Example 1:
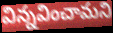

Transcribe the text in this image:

విన్నవించామని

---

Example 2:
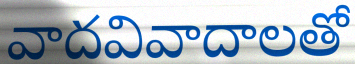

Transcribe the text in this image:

వాదవివాదాలతో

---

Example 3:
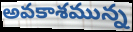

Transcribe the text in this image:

అవకాశమున్న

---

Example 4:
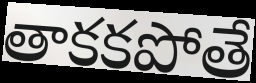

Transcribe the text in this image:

తాకకపోతే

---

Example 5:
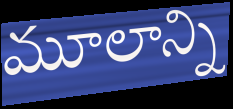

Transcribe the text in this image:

మూలాన్ని